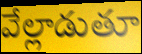
వేల్లాడుతూ